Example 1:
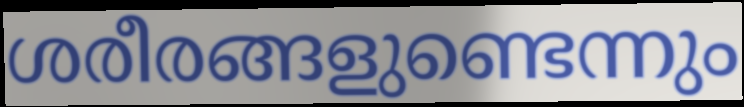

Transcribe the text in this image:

ശരീരങ്ങളുണ്ടെന്നും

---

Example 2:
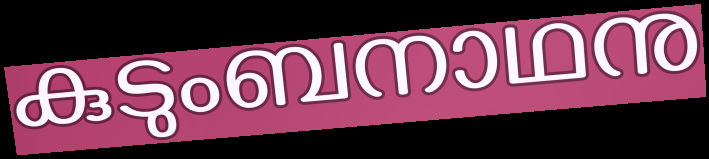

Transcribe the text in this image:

കുടുംബനാഥനു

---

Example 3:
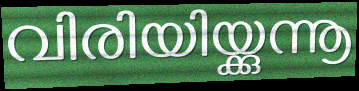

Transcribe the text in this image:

വിരിയിയ്ക്കുന്നൂ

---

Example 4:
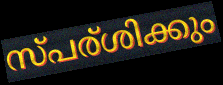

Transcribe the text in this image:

സ്പര്ശിക്കും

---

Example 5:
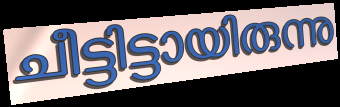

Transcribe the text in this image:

ചീട്ടിട്ടായിരുന്നു